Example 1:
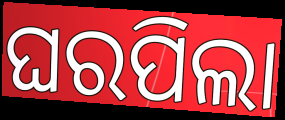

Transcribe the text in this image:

ଘରପିଲା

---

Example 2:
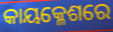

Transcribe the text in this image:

କାୟକ୍ଳେଶରେ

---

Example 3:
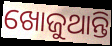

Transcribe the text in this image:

ଖୋଜୁଥାନ୍ତି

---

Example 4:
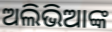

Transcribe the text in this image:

ଅଲିଭିଆଙ୍କ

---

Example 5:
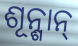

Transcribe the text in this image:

ଶୂନ୍ଶାନ୍